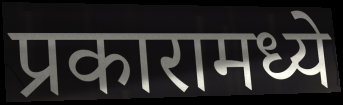
प्रकारामध्ये